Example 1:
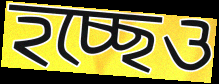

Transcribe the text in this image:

হচ্ছেও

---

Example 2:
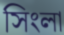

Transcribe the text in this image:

সিংলা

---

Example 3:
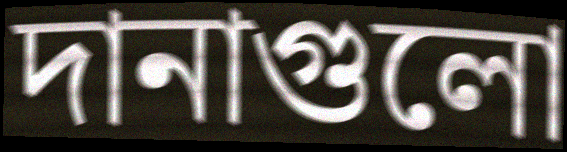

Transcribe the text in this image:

দানাগুলো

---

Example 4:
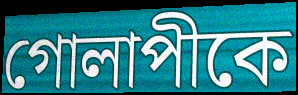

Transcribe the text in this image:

গোলাপীকে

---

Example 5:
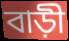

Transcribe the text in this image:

বাড়ী